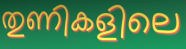
തുണികളിലെ